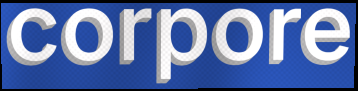
corpore